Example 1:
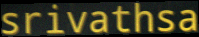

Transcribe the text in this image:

srivathsa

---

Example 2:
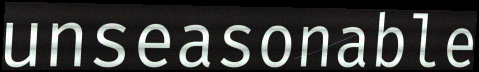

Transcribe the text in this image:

unseasonable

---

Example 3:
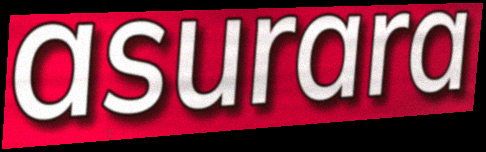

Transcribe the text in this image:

asurara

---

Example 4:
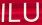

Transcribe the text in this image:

ILU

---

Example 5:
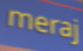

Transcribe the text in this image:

meraj